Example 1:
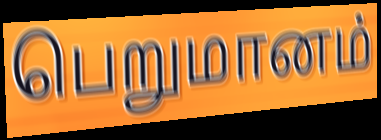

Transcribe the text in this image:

பெறுமானம்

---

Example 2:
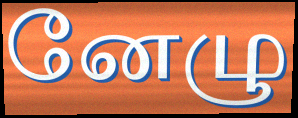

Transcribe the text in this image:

னேழு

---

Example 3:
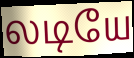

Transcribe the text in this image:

லடியே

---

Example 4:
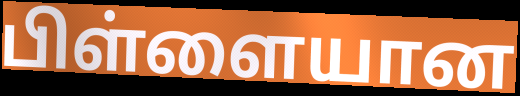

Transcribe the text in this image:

பிள்ளையான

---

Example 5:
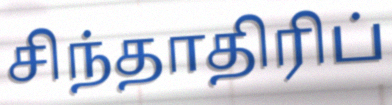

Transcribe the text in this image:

சிந்தாதிரிப்